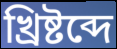
খ্রিষ্টব্দে